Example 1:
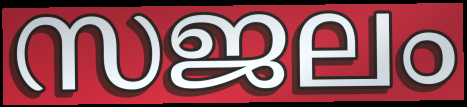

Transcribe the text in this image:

സജലം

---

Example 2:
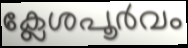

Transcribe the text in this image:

ക്ലേശപൂർവം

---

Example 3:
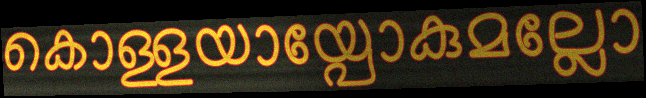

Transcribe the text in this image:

കൊള്ളയായ്പോകുമല്ലോ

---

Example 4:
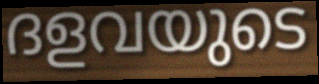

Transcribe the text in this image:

ദളവയുടെ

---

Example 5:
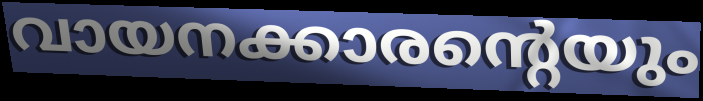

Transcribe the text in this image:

വായനക്കാരന്റെയും